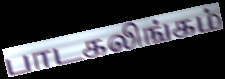
பாடகலிங்கம்